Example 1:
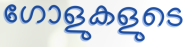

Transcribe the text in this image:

ഗോളുകളുടെ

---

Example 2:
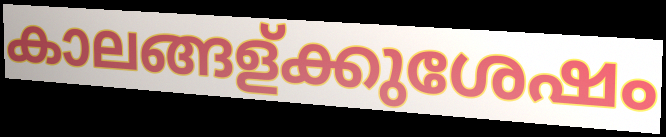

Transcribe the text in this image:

കാലങ്ങള്ക്കുശേഷം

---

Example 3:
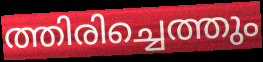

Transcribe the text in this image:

ത്തിരിച്ചെത്തും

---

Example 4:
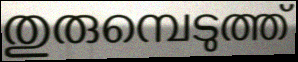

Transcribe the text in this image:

തുരുമ്പെടുത്ത്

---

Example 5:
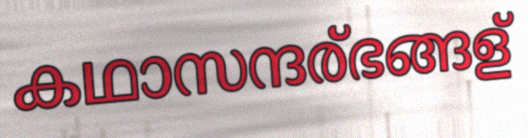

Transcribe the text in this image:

കഥാസന്ദര്ഭങ്ങള്